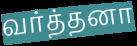
வர்த்தனா